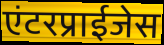
एंटरप्राईजेस